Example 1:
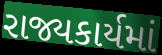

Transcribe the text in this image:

રાજ્યકાર્યમાં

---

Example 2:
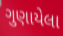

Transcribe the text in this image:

ગુણાયેલા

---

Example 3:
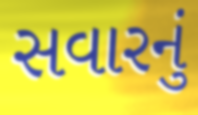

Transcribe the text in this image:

સવારનું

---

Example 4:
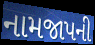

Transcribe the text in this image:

નામજાપની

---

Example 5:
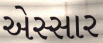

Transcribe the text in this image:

એસ્સાર